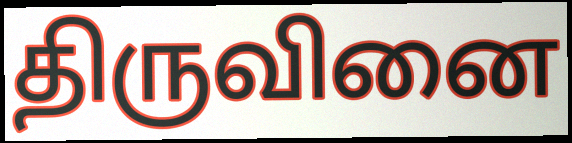
திருவினை